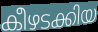
കീഴടക്കിയ